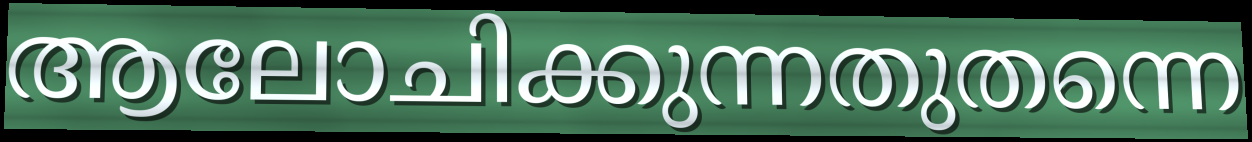
ആലോചിക്കുന്നതുതന്നെ